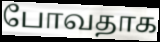
போவதாக